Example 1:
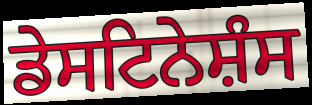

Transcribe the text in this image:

ਡੇਸਟਿਨੇਸ਼ੰਸ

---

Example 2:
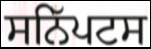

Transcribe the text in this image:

ਸਨਿੱਪਟਸ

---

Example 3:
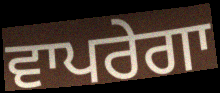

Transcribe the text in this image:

ਵਾਪਰੇਗਾ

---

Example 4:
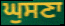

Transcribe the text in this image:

ਘੁਸਣਾ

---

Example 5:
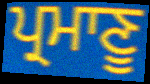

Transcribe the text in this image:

ਪ੍ਰਮਾਣੂ